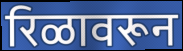
रिळावरून